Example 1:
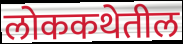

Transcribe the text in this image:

लोककथेतील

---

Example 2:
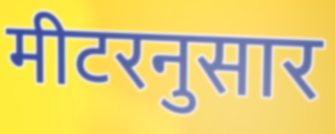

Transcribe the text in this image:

मीटरनुसार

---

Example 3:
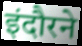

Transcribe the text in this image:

इंदौरने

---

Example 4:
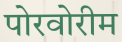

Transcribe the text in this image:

पोरवोरीम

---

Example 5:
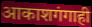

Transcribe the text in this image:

आकाशगंगाही